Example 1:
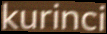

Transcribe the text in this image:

kurinci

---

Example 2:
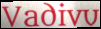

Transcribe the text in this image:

Vadivu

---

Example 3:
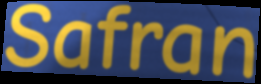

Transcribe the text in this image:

Safran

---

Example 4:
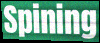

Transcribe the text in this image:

Spining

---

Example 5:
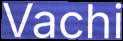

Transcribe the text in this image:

Vachi